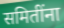
समितींना